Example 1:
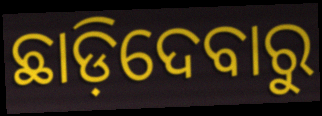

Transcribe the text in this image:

ଛାଡ଼ିଦେବାରୁ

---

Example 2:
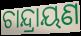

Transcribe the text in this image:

ଚାନ୍ଦ୍ରାୟଣ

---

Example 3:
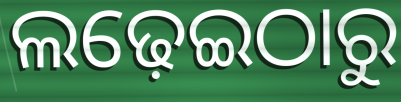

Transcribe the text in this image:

ଲଢ଼େଇଠାରୁ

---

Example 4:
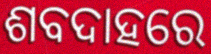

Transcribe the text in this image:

ଶବଦାହରେ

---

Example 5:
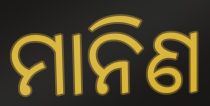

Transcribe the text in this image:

ମାନିଣ